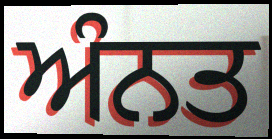
ਅੰਨਤ